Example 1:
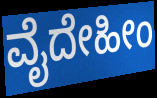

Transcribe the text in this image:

ವೈದೇಹೀಂ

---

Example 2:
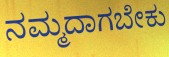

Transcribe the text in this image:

ನಮ್ಮದಾಗಬೇಕು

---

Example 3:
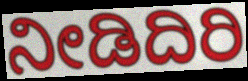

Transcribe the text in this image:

ನೀಡಿದಿರಿ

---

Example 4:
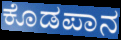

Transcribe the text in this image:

ಕೊಡಪಾನ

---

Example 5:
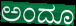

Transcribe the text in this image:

ಅಂದೂ